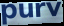
purv